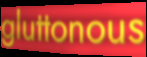
gluttonous